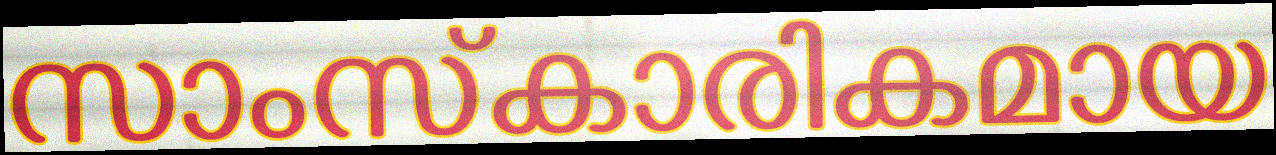
സാംസ്‌കാരികമായ